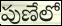
పుణేలో